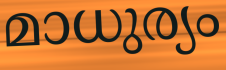
മാധുര്യം